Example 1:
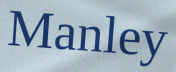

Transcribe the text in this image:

Manley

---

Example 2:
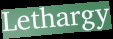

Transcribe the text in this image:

Lethargy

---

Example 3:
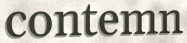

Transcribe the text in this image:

contemn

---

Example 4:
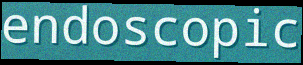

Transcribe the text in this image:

endoscopic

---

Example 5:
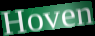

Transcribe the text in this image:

Hoven